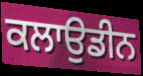
ਕਲਾਉਡੀਨ